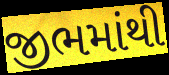
જીભમાંથી